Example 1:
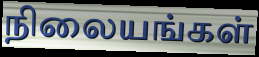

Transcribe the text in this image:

நிலையங்கள்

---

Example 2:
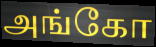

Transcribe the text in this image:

அங்கோ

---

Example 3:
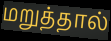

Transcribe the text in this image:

மறுத்தால்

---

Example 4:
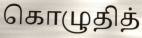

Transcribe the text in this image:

கொழுதித்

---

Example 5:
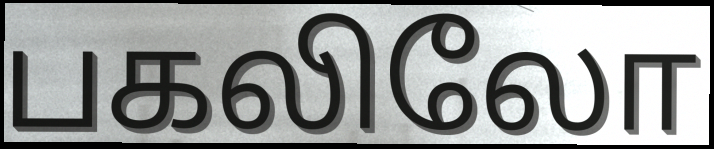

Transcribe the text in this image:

பகலிலோ